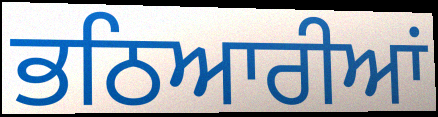
ਭਠਿਆਰੀਆਂ